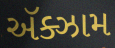
ઍક્ઝામ